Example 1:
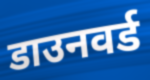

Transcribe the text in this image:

डाउनवर्ड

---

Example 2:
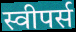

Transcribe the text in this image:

स्वीपर्स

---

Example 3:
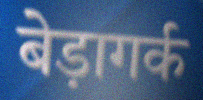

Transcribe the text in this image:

बेड़ागर्क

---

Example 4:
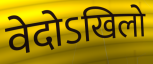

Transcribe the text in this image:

वेदोऽखिलो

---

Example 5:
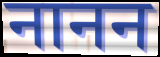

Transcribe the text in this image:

नानन